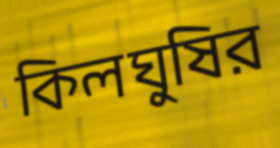
কিলঘুষির